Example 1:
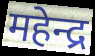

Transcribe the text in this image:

महेन्‍द्र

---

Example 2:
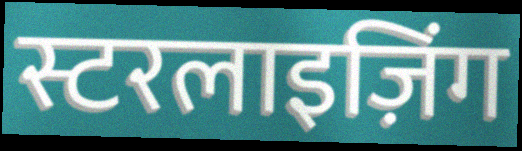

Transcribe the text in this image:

स्टरलाइज़िंग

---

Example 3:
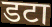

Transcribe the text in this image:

डटा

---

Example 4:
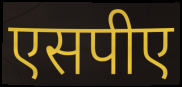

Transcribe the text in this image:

एसपीए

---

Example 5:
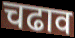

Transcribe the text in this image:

चढाव